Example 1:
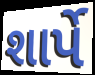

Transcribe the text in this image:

શાર્પે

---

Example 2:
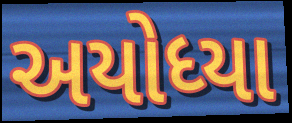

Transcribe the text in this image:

અયોધ્યા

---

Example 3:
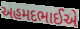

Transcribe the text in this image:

અહમદભાઈએ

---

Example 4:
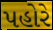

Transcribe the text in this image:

પહોરે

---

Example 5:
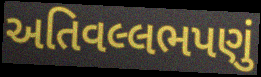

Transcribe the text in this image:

અતિવલ્લભપણું